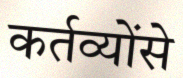
कर्तव्योंसे